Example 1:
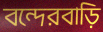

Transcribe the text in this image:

বন্দেরবাড়ি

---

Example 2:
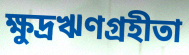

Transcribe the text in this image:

ক্ষুদ্রঋণগ্রহীতা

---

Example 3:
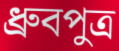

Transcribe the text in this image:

ধ্রুবপুত্র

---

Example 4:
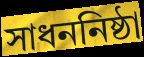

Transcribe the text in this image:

সাধননিষ্ঠা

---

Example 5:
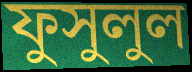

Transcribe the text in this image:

ফুসুলুল